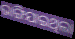
ଭାଙ୍ଗିଯାଇଥିଲା